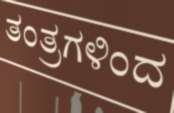
ತಂತ್ರಗಳಿಂದ